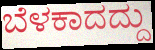
ಬೆಳಕಾದದ್ದು